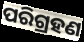
ପରିଗ୍ରହଣ